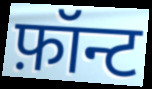
फ़ॉन्ट